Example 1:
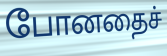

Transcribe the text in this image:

போனதைச்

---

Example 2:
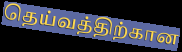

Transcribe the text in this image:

தெய்வத்திற்கான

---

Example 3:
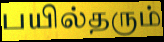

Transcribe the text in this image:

பயில்தரும்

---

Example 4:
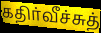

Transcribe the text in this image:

கதிர்வீச்சுத்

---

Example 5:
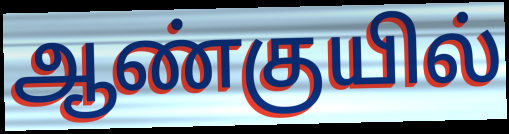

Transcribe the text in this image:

ஆண்குயில்